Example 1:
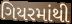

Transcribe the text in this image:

ગિયરમાંથી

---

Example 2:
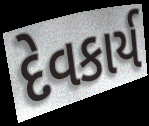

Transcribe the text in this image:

દેવકાર્ય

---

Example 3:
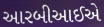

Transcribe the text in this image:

આરબીઆઈએ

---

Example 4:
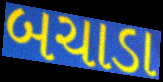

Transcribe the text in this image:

બચાડા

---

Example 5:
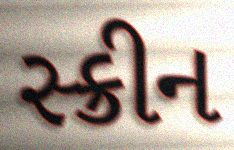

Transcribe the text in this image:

સ્ક્રીન